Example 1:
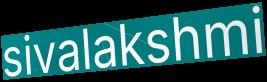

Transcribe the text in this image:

sivalakshmi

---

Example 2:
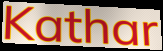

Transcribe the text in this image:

Kathar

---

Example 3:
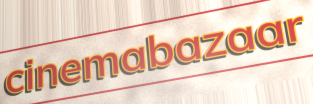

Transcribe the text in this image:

cinemabazaar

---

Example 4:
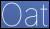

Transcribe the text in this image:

Oat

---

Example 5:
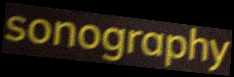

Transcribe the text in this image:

sonography